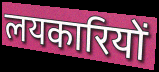
लयकारियों